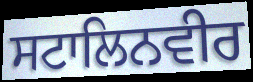
ਸਟਾਲਿਨਵੀਰ